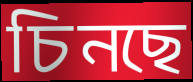
চিনছে